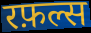
रफ़ल्स